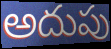
అదుపు